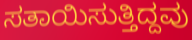
ಸತಾಯಿಸುತ್ತಿದ್ದವು